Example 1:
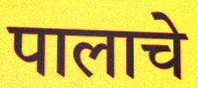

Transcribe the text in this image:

पालाचे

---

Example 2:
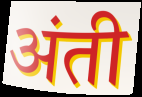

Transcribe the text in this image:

अंती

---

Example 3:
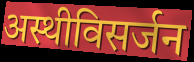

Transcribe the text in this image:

अस्थीविसर्जन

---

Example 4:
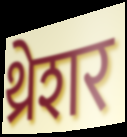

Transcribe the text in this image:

थ्रेशर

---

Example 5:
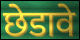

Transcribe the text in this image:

छेडावे